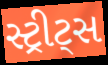
સ્ટ્રીટ્સ